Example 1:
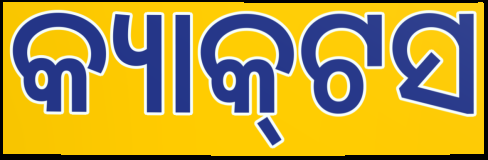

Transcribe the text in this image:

କ୍ୟାକ୍‌ଟସ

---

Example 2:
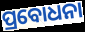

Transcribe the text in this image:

ପ୍ରବୋଧନା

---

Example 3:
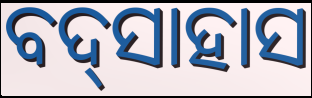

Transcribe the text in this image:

ବଦ୍‌ସାହାସ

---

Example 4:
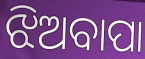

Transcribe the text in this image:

ଝିଅବାପା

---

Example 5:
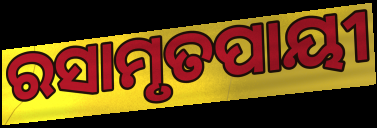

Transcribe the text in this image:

ରସାମୃତପାୟୀ